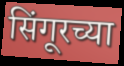
सिंगूरच्या